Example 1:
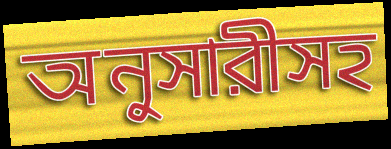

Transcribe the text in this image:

অনুসারীসহ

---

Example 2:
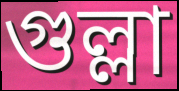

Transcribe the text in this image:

গুল্লা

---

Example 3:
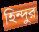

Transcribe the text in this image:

হিন্দুর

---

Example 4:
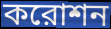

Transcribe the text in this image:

করোশন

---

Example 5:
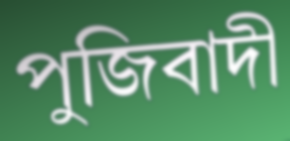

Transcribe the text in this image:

পুজিবাদী